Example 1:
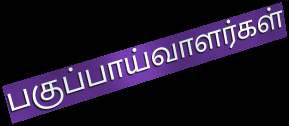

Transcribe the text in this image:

பகுப்பாய்வாளர்கள்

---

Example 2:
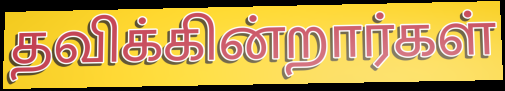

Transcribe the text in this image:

தவிக்கின்றார்கள்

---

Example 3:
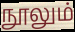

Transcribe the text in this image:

நூலும்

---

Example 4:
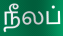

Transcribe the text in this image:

நீலப்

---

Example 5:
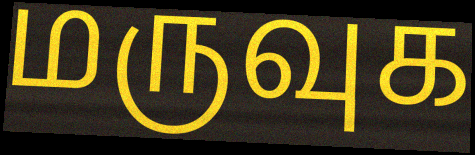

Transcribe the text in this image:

மருவுக